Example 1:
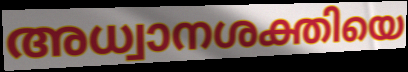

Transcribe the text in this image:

അധ്വാനശക്തിയെ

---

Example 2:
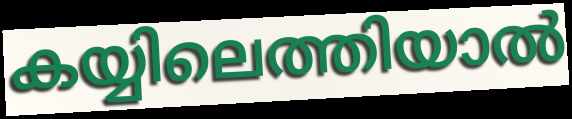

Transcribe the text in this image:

കയ്യിലെത്തിയാൽ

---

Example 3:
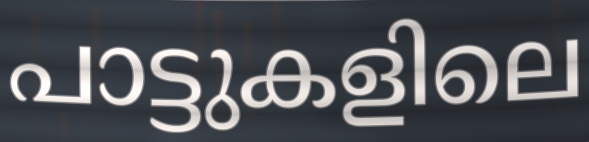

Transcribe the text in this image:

പാട്ടുകളിലെ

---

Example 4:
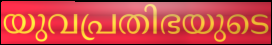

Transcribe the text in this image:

യുവപ്രതിഭയുടെ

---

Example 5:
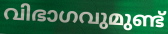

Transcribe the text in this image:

വിഭാഗവുമുണ്ട്